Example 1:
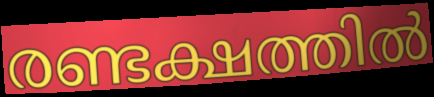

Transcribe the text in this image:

രണ്ടക്ഷത്തിൽ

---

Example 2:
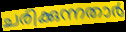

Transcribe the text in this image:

ചരിക്കുന്നതാർ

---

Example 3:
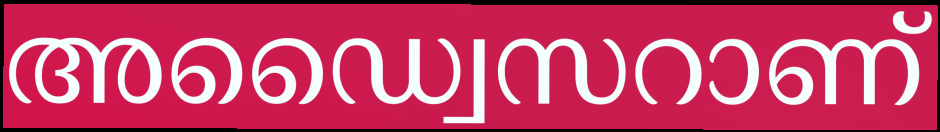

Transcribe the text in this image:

അഡ്വൈസറാണ്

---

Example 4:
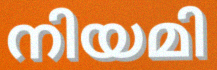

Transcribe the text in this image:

നിയമി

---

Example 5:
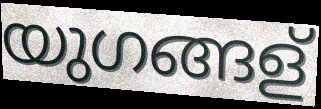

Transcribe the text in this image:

യുഗങ്ങള്